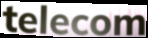
telecom